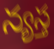
న్యస్త